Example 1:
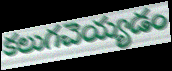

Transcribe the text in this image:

కలుగచెయ్యడం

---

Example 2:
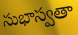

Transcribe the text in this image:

సుభాస్వతా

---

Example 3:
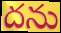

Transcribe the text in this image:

దను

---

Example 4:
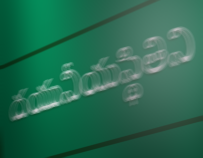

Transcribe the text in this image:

దయనీయస్థితిని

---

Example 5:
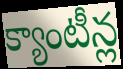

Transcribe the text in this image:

క్యాంటీన్ల